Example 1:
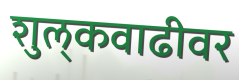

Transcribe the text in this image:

शुल्कवाढीवर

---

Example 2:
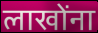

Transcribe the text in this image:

लाखोंना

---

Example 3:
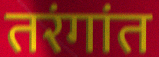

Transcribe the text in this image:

तरंगांत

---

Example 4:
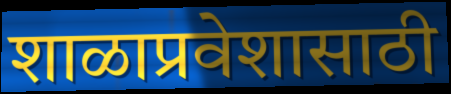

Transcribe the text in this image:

शाळाप्रवेशासाठी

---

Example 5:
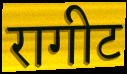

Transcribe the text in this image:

रागीट